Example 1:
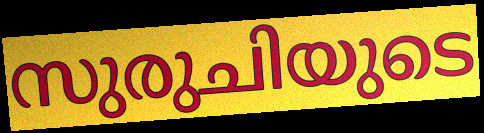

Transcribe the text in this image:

സുരുചിയുടെ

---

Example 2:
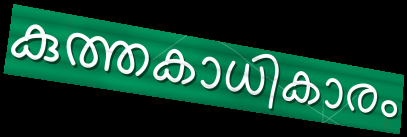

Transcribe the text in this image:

കുത്തകാധികാരം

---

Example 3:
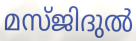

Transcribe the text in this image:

മസ്ജിദുൽ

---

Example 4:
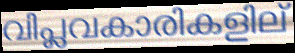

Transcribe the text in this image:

വിപ്ലവകാരികളില്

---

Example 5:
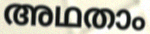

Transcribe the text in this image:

അഥതാം